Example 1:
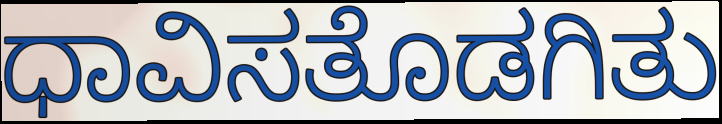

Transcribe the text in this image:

ಧಾವಿಸತೊಡಗಿತು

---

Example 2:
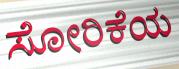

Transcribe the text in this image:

ಸೋರಿಕೆಯ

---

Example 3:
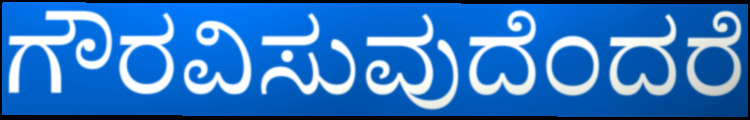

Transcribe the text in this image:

ಗೌರವಿಸುವುದೆಂದರೆ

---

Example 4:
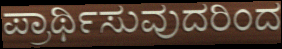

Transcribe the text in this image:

ಪ್ರಾರ್ಥಿಸುವುದರಿಂದ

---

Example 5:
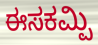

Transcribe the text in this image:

ಈಸಕಮ್ಪಿ